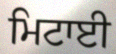
ਮਿਟਾਈ